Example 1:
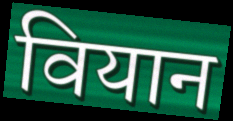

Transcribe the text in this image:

वियान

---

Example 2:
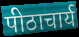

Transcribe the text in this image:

पीठाचार्य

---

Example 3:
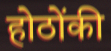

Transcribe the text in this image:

होठोंकी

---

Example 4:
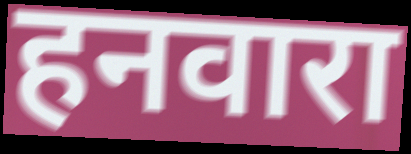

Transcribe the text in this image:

हनवारा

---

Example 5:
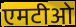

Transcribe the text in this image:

एमटीओ